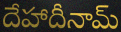
దేహాదీనామ్